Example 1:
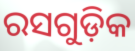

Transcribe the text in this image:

ରସଗୁଡ଼ିକ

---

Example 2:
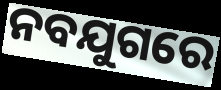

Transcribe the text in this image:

ନବଯୁଗରେ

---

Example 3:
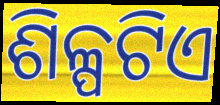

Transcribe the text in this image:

ଶିଳ୍ପଟିଏ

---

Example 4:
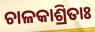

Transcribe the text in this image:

ଚାଳକାଶ୍ରିତାଃ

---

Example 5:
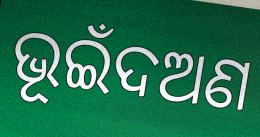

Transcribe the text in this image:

ଭୂଇଁଦଅଣ